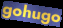
gohugo